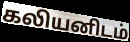
கலியனிடம்